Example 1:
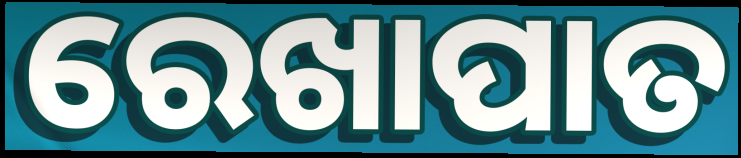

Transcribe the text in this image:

ରେଖାପାତ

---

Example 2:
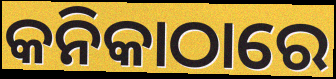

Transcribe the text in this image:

କନିକାଠାରେ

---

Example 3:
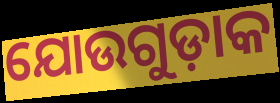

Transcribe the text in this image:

ଯୋଉଗୁଡ଼ାକ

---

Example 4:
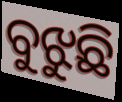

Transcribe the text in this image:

ବୁଝୁଛି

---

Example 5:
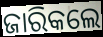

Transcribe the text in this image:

ଜାରିକଲେ